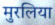
मुरलिया